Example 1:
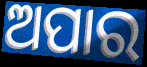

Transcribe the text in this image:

ଅପାର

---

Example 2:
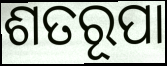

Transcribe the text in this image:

ଶତରୂପା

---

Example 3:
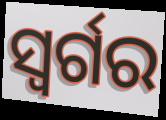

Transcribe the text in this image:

ସ୍ୱର୍ଗର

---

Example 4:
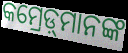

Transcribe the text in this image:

କମ୍ରେଡ଼୍‌ମାନଙ୍କ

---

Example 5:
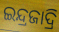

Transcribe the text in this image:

ଇନ୍ଦ୍ରଜାଦ୍ରି